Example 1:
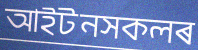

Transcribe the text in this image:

আইটনসকলৰ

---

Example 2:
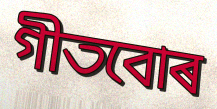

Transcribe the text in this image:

গীতবোৰ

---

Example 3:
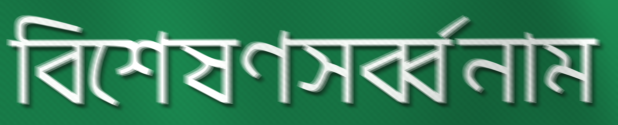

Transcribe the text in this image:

বিশেষণসৰ্ব্বনাম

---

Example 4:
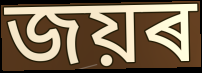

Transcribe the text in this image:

জয়ৰ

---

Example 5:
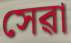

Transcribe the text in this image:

সেৱা